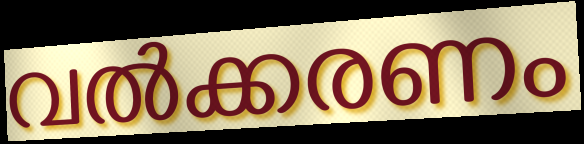
വൽക്കരണം